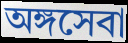
অঙ্গসেবা